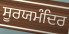
ਸੂਰਯਮੰਦਿਰ